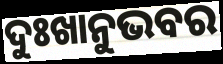
ଦୁଃଖାନୁଭବର